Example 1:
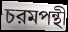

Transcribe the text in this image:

চরমপন্থী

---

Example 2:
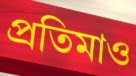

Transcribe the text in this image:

প্রতিমাও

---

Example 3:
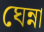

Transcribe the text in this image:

ঘেন্না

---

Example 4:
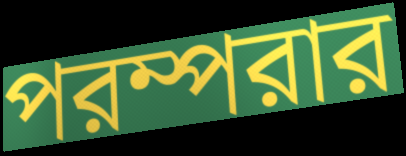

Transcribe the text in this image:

পরম্পরার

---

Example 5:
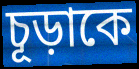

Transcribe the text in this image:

চূড়াকে